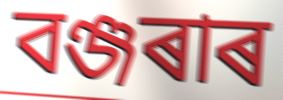
বঞ্জৰাৰ